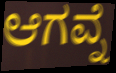
ಆಗವ್ನೆ